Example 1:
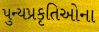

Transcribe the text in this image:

પુન્યપ્રકૃતિઓના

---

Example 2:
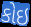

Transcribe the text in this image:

કોઇ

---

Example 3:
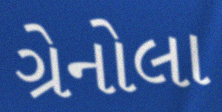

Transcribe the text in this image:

ગ્રેનોલા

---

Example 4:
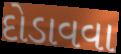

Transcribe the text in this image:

દોડાવવા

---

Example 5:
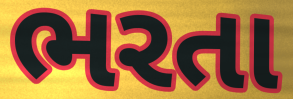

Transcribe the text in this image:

ભરતા